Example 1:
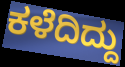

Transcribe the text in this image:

ಕಳೆದಿದ್ದು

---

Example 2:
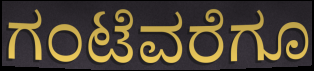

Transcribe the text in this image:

ಗಂಟೆವರೆಗೂ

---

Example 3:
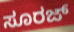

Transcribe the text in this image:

ಸೂರಜ್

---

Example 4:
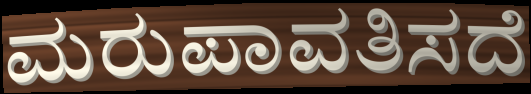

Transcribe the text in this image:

ಮರುಪಾವತಿಸದೆ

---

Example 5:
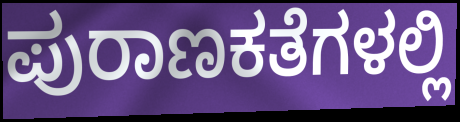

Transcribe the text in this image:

ಪುರಾಣಕತೆಗಳಲ್ಲಿ